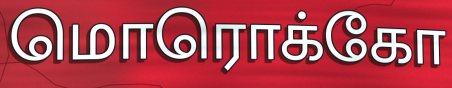
மொரொக்கோ